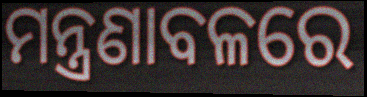
ମନ୍ତ୍ରଣାବଳରେ